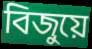
বিজুয়ে